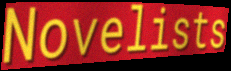
Novelists